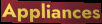
Appliances